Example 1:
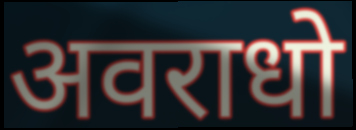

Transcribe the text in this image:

अवराधो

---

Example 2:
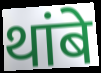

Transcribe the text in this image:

थांबे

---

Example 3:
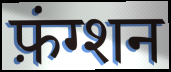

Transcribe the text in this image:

फ़ंग्शन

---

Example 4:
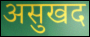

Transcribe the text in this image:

असुखद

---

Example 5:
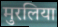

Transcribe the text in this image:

मुरलिया